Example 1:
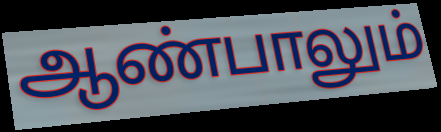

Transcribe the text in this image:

ஆண்பாலும்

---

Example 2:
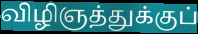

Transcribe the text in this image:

விழிஞத்துக்குப்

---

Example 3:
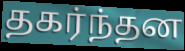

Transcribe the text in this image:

தகர்ந்தன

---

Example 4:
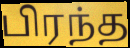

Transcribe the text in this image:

பிரந்த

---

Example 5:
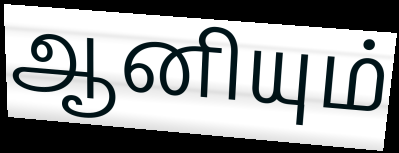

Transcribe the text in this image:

ஆனியும்